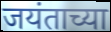
जयंताच्या